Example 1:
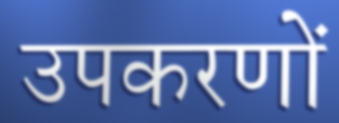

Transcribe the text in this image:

उपकरणों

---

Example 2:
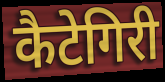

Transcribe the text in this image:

कैटेगिरी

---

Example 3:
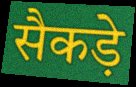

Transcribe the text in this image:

सैकड़े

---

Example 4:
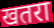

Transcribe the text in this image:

खतरा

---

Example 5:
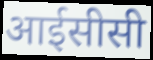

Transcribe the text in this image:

आईसीसी